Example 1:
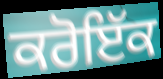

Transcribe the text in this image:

ਕਰੋਇੱਕ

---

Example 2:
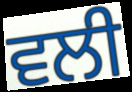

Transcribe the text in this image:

ਵਲੀ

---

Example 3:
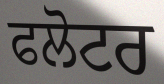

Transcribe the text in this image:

ਫਲੋਟਰ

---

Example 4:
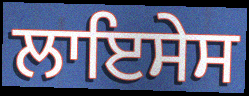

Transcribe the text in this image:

ਲਾਇਸੇਸ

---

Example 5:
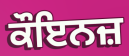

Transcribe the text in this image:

ਕੌਇਨਜ਼